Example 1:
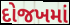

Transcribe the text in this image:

દોજખમાં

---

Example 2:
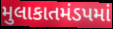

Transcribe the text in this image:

મુલાકાતમંડપમાં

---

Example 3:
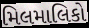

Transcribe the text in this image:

મિલમાલિકો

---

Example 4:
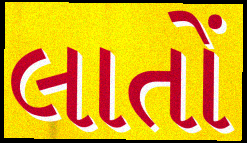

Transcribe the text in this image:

લાતોં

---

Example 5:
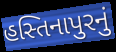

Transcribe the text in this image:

હસ્તિનાપુરનું